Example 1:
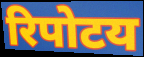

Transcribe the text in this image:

रिपोटय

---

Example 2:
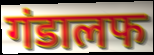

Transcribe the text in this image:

गंडालफ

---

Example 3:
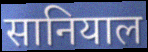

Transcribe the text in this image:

सानियाल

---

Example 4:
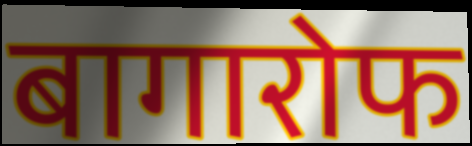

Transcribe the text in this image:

बागारोफ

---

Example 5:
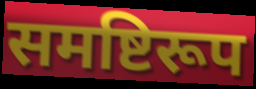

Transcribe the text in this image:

समष्टिरूप